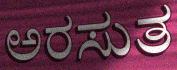
ಅರಸುತ